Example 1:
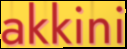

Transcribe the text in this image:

akkini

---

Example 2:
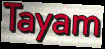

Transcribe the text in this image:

Tayam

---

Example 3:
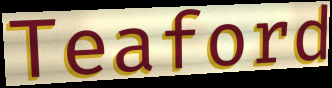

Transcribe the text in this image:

Teaford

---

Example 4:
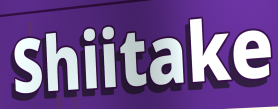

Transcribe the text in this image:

Shiitake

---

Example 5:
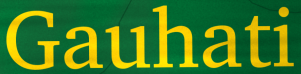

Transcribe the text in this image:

Gauhati